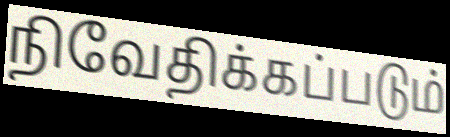
நிவேதிக்கப்படும்